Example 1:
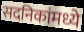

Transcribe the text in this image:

सदनिकांमध्ये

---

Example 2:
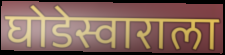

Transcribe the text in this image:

घोडेस्वाराला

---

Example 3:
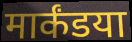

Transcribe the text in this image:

मार्कंडया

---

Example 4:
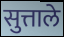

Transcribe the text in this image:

सुत्ताले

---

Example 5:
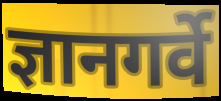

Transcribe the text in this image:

ज्ञानगर्वे